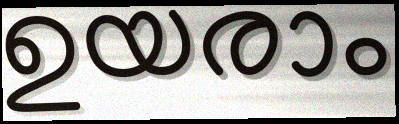
ഉയരാം